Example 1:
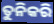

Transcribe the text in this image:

ତୁନିକରି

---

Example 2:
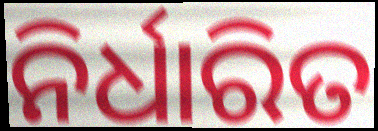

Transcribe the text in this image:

ନିର୍ଧାରିତ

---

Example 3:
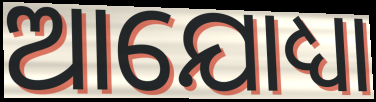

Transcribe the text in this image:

ଆଯୋଧ୍ୟା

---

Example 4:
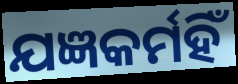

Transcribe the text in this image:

ଯଜ୍ଞକର୍ମହିଁ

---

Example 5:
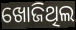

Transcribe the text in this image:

ଖୋଜିଥିଲ